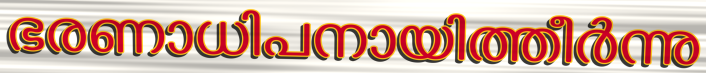
ഭരണാധിപനായിത്തീർന്നു